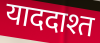
याददाश्त